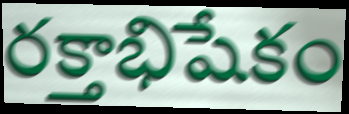
రక్తాభిషేకం